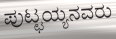
ಪುಟ್ಟಯ್ಯನವರು